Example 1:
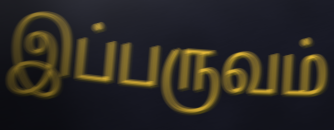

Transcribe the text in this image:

இப்பருவம்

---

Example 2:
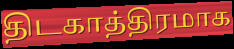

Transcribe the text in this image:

திடகாத்திரமாக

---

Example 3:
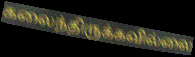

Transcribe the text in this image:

கலைந்திருக்கவில்லை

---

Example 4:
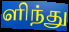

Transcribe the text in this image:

ளிந்து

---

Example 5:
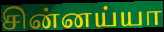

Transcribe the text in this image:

சின்னய்யா